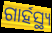
ଗାର୍ହସ୍ଥ୍ୟ